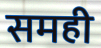
समही